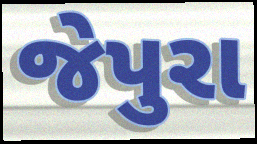
જેપુરા